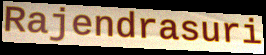
Rajendrasuri